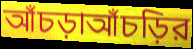
আঁচড়াআঁচড়ির